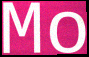
Mo